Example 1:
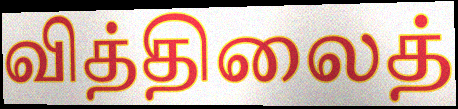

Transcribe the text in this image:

வித்திலைத்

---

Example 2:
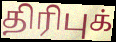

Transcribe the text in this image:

திரிபுக்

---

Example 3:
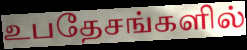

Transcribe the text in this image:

உபதேசங்களில்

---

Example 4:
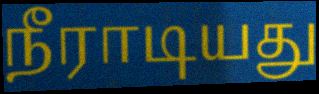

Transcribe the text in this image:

நீராடியது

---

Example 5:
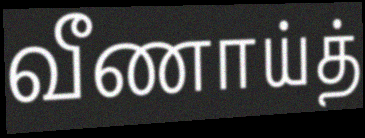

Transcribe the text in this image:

வீணாய்த்